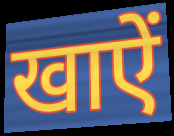
खाऐं